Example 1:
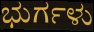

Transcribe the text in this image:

ಭುರ್ಗಳು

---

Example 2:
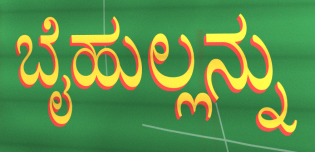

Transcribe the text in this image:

ಬೈಹುಲ್ಲನ್ನು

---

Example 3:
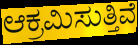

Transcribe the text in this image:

ಆಕ್ರಮಿಸುತ್ತಿವೆ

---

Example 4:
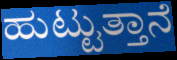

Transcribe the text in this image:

ಹುಟ್ಟುತ್ತಾನೆ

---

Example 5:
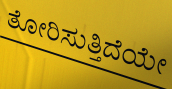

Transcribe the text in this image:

ತೋರಿಸುತ್ತಿದೆಯೇ